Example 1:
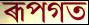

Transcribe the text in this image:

ৰূপগত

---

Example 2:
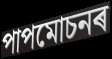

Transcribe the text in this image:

পাপমোচনৰ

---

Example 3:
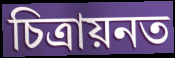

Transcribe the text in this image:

চিত্ৰায়নত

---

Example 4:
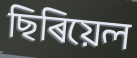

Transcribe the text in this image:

ছিৰিয়েল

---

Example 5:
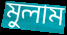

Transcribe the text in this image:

মুলাম